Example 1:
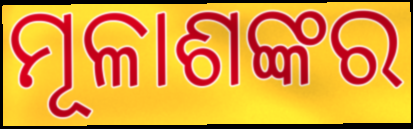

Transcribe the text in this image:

ମୂଳାଶଙ୍କର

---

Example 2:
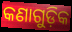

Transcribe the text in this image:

କଣାଗୁଡ଼ିକ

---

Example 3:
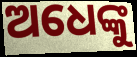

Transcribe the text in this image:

ଅଧେଙ୍କୁ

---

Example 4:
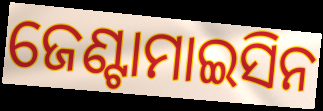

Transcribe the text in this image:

ଜେଣ୍ଟାମାଇସିନ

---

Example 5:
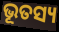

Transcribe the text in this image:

ଭୂତସ୍ୟ